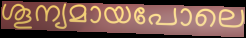
ശൂന്യമായപോലെ